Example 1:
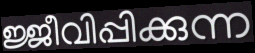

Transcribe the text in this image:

ജ്ജീവിപ്പിക്കുന്ന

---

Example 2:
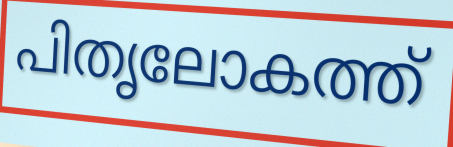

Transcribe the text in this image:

പിതൃലോകത്ത്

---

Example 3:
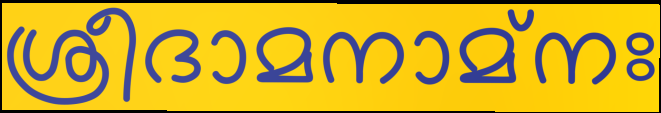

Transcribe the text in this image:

ശ്രീദാമനാമ്നഃ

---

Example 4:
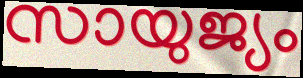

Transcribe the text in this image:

സായുജ്യം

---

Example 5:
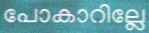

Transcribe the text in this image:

പോകാറില്ലേ